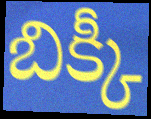
బిక్కీ